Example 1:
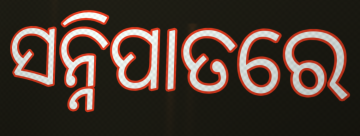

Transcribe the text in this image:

ସନ୍ନିପାତରେ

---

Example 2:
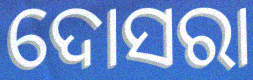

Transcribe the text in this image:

ଦୋସରା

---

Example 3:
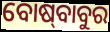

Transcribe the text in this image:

ବୋଷ୍‍ବାବୁର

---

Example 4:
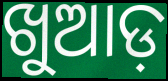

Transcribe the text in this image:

ଖୁଆଡ଼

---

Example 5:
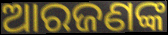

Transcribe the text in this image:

ଆରଜଣଙ୍କ